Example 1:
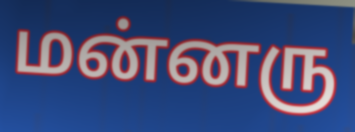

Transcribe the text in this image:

மன்னரு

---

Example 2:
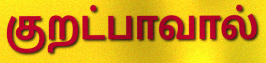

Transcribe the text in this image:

குறட்பாவால்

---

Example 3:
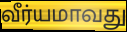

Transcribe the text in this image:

வீர்யமாவது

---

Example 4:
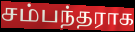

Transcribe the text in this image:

சம்பந்தராக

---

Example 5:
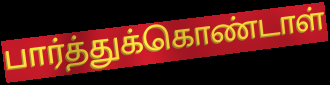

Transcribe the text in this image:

பார்த்துக்கொண்டாள்